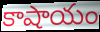
కాషాయం